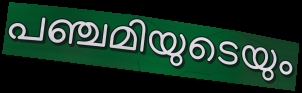
പഞ്ചമിയുടെയും